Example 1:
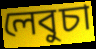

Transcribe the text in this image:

লেবুচা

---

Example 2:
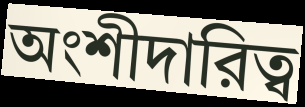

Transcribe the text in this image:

অংশীদারিত্ব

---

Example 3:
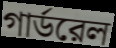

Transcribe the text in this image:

গার্ডরেল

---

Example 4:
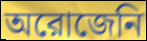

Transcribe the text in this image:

অরোজেনি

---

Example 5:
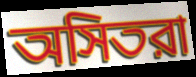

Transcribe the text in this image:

অসিতরা